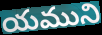
యముని